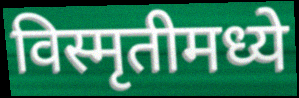
विस्मृतीमध्ये